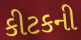
કીટકની